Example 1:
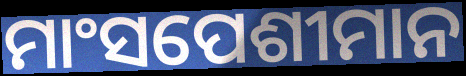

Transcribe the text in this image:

ମାଂସପେଶୀମାନ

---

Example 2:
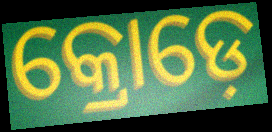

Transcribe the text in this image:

କ୍ରୋଡ଼େ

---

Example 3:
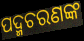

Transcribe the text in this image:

ପଦ୍ମଚରଣଙ୍କ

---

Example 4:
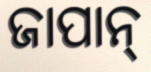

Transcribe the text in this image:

ଜାପାନ୍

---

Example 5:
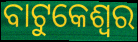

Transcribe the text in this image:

ବାଟୁକେଶ୍ୱର